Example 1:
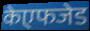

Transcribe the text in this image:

केएफजेड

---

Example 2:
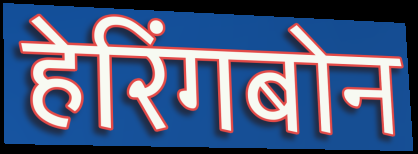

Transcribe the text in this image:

हेरिंगबोन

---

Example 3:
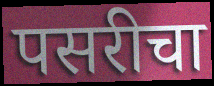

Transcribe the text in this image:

पसरीचा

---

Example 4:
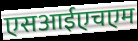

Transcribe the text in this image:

एसआईएचएम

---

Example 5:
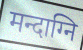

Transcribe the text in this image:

मन्दाग्नि